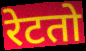
रेटतो